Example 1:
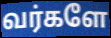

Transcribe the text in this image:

வர்களே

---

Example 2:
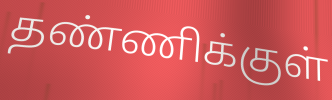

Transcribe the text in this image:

தண்ணிக்குள்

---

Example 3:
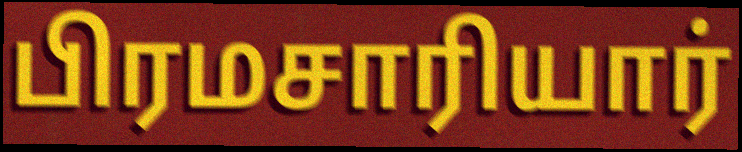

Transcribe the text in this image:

பிரமசாரியார்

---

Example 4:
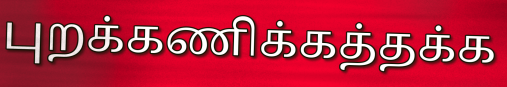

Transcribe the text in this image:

புறக்கணிக்கத்தக்க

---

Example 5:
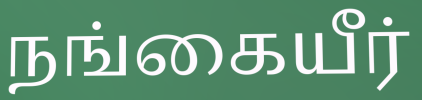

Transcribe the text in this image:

நங்கையீர்